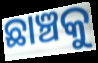
ଛାଞ୍ଚକୁ